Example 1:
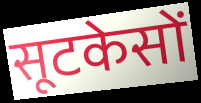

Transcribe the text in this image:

सूटकेसों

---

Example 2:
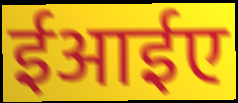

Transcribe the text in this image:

ईआईए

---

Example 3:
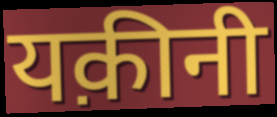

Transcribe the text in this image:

यक़ीनी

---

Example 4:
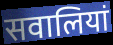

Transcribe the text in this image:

सवालियां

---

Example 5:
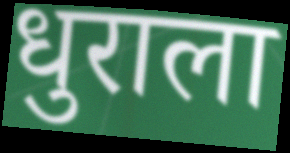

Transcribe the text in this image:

धुराला